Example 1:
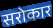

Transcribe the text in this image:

सरोकार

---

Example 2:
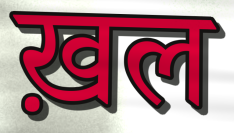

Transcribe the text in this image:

ख़ल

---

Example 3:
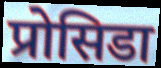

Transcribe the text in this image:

प्रोसिडा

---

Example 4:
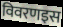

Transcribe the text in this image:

विवरणइस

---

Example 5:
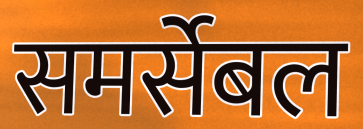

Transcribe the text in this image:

समर्सेबल